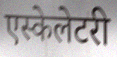
एस्केलेटरी